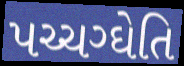
પચ્ચગ્ઘેતિ